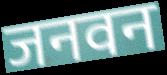
जनवन